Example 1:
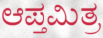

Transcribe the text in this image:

ಆಪ್ತಮಿತ್ರ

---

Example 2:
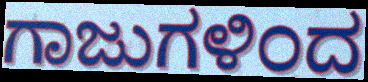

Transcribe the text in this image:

ಗಾಜುಗಳಿಂದ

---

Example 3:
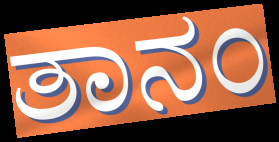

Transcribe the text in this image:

ತಾನಂ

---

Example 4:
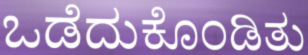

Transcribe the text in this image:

ಒಡೆದುಕೊಂಡಿತು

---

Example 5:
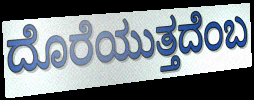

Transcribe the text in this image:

ದೊರೆಯುತ್ತದೆಂಬ